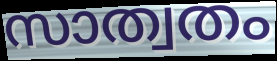
സാത്വതം